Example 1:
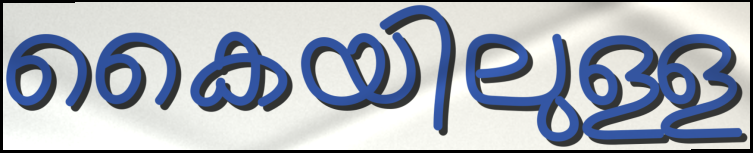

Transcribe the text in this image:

കൈയിലുള്ള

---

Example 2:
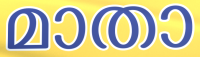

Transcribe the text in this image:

മാതാ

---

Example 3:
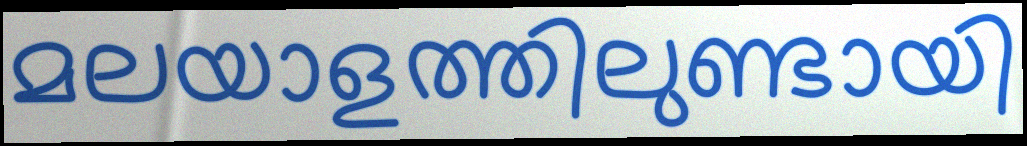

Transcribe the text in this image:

മലയാളത്തിലുണ്ടായി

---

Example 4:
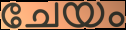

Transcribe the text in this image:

ചേയം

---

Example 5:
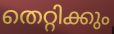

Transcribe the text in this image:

തെറ്റിക്കും